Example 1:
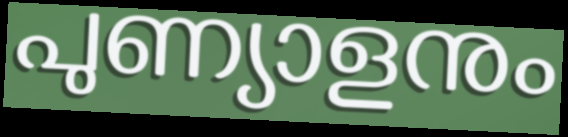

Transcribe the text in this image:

പുണ്യാളനും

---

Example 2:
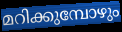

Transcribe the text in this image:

മറിക്കുമ്പോഴും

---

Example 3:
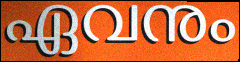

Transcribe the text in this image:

ഏവനും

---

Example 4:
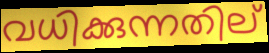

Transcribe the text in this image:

വധിക്കുന്നതില്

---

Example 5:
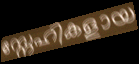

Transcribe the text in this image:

സ്നേഹികളായ